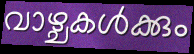
വാഴ്ചകൾക്കും